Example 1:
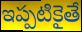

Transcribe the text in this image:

ఇప్పటికైతే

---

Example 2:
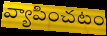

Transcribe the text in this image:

వ్యాపించటం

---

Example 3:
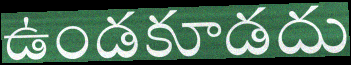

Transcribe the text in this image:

ఉండకూడదు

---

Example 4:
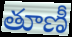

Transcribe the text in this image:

తూణీ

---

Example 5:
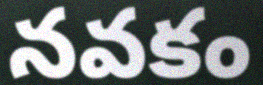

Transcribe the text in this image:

నవకం